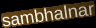
sambhalnar